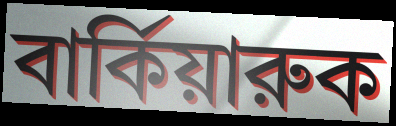
বার্কিয়ারুক